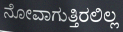
ನೋವಾಗುತ್ತಿರಲಿಲ್ಲ